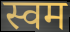
स्वम